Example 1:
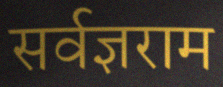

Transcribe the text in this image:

सर्वज्ञराम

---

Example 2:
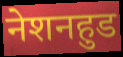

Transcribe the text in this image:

नेशनहुड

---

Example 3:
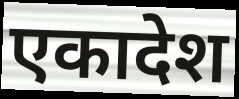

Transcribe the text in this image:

एकादेश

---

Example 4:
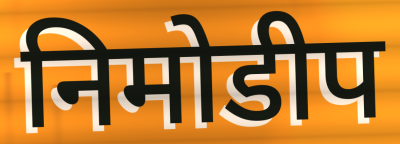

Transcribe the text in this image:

निमोडीप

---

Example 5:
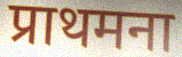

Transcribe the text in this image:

प्राथमना